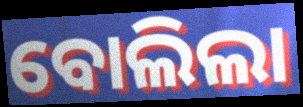
ବୋଲିଲା